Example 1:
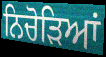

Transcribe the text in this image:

ਨਿਚੋੜਿਆਂ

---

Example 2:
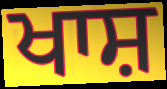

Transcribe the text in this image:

ਖਾਸ਼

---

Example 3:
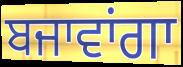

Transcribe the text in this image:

ਬਜਾਵਾਂਗਾ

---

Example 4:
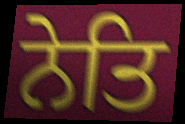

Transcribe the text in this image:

ਨੇਤਿ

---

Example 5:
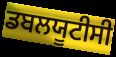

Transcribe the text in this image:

ਡਬਲਯੂਟੀਸੀ